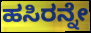
ಹಸಿರನ್ನೇ